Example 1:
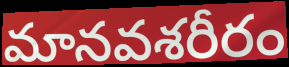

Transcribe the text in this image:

మానవశరీరం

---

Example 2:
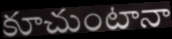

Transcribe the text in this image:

కూచుంటానా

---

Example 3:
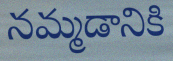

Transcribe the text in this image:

నమ్మడానికి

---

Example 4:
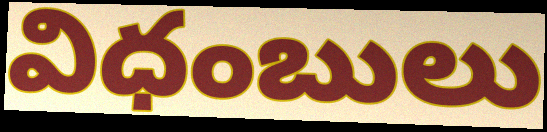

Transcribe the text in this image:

విధంబులు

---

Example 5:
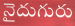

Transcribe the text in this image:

నైదుగురు